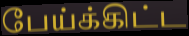
பேய்க்கிட்ட